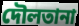
দৌলতানা